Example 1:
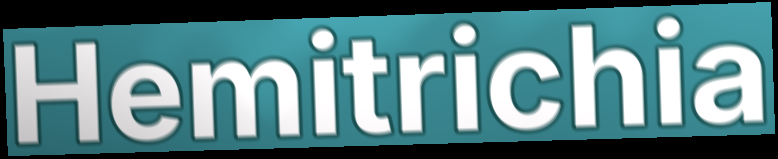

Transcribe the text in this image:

Hemitrichia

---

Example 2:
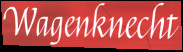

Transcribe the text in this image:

Wagenknecht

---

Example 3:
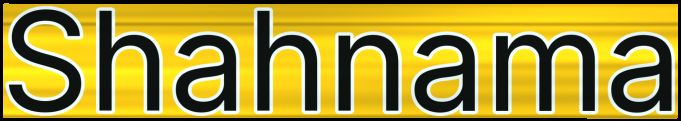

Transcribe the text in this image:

Shahnama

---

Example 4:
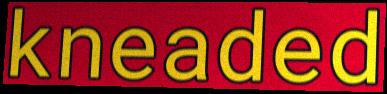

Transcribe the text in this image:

kneaded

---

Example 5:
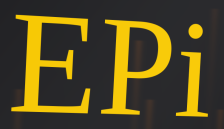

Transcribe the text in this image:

EPi